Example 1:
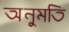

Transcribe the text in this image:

অনুমতি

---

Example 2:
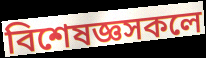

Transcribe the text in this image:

বিশেষজ্ঞসকলে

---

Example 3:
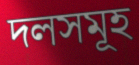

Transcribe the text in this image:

দলসমূহ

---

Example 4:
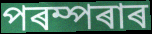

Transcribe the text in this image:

পৰম্পৰাৰ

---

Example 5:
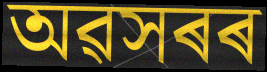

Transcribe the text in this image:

অৱসৰৰ